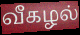
வீகழல்